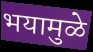
भयामुळे